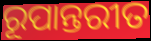
ରୂପାନ୍ତରୀତ